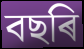
বছৰি